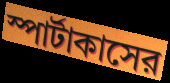
স্পার্টাকাসের